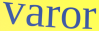
varor